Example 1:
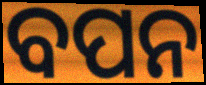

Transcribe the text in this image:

ବପନ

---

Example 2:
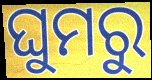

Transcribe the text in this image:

ଘୁମରୁ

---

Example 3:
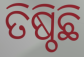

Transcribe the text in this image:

ତିଷ୍ଠିଛି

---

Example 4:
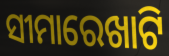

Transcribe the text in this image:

ସୀମାରେଖାଟି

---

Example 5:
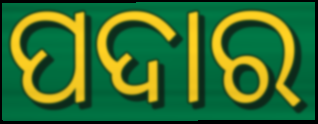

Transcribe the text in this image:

ପଦାର